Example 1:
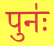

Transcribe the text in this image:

पुनः॑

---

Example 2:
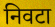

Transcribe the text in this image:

निवटा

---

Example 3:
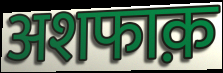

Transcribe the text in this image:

अशफाक़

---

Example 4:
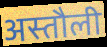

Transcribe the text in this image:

अस्तौली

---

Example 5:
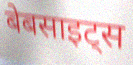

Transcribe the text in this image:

बेबसाइट्स